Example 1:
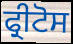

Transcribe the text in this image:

ਫ੍ਰੀਟੋਸ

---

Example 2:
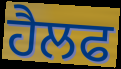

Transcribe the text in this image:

ਹੈਲਫ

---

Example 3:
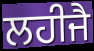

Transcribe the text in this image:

ਲਹੀਜੈ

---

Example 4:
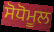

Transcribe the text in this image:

ਸੋਧੋਮੂਲ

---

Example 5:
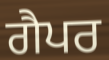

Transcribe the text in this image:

ਗੈਪਰ